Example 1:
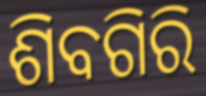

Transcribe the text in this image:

ଶିବଗିରି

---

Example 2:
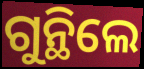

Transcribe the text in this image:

ଗୁନ୍ଥିଲେ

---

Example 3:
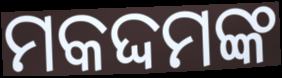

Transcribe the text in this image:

ମକଦ୍ଦମଙ୍କ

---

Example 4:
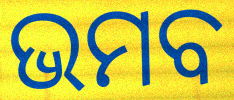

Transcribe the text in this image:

ଭମବ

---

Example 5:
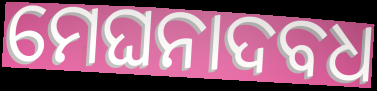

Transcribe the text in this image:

ମେଘନାଦବଧ